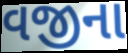
વજીના